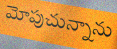
మోపుచున్నాను